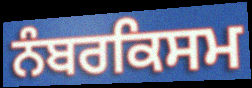
ਨੰਬਰਕਿਸਮ